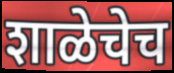
शाळेचेच